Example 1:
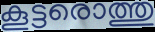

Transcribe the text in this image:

കൂട്ടരൊത്തു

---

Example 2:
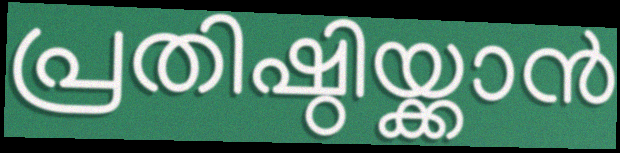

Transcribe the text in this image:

പ്രതിഷ്ഠിയ്ക്കാൻ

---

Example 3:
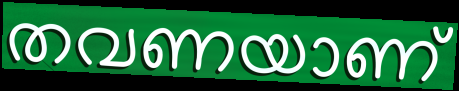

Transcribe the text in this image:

തവണയാണ്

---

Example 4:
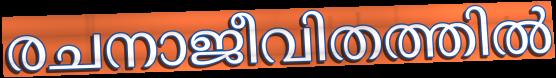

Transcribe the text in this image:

രചനാജീവിതത്തിൽ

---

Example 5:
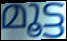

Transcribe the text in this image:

മൂട്ട